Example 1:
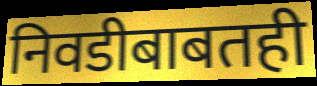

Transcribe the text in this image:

निवडीबाबतही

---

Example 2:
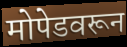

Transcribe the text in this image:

मोपेडवरून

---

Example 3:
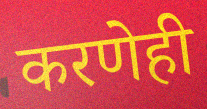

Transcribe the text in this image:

करणेही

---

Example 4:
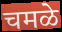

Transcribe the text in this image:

चमळे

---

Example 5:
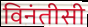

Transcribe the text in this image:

विनंतीसी